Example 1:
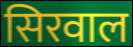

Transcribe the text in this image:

सिरवाल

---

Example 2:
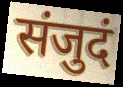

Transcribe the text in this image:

संजुदं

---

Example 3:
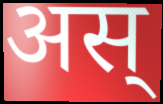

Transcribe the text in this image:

अस्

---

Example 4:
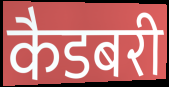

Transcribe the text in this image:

कैडबरी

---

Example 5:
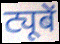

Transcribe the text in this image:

ट्यूबें